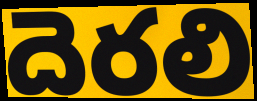
దెరలి